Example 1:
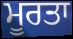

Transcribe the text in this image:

ਮੂਰਤਾ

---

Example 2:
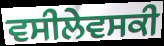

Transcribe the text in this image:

ਵਸੀਲੇਵਸਕੀ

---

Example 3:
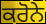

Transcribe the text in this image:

ਕਰੋਨੇ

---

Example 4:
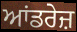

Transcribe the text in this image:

ਆਂਡਰੇਜ਼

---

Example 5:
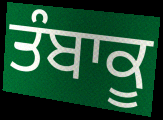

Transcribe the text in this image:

ਤੰਬਾਕੂ